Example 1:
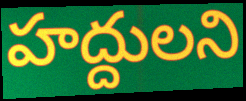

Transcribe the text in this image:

హద్దులని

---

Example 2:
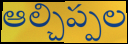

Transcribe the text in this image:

ఆల్చిప్పల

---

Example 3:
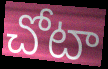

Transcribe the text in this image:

చోటా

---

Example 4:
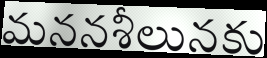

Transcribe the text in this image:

మననశీలునకు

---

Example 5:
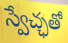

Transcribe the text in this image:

స్వేచ్ఛతో